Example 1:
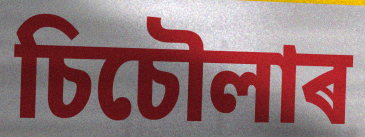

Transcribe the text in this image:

চিচৌলাৰ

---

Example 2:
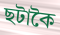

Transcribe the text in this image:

ছটাকৈ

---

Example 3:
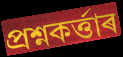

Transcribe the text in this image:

প্ৰশ্নকৰ্ত্তাৰ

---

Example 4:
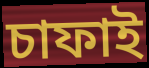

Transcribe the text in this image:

চাফাই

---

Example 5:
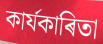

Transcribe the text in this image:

কাৰ্যকাৰিতা